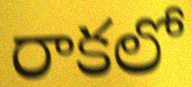
రాకలో